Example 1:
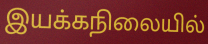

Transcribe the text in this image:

இயக்கநிலையில்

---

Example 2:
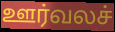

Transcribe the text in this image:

ஊர்வலச்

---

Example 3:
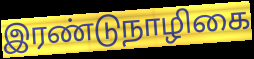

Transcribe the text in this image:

இரண்டுநாழிகை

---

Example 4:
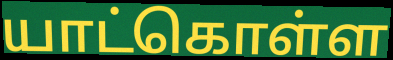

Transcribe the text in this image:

யாட்கொள்ள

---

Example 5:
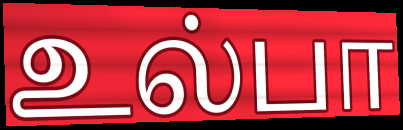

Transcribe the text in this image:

உல்பா